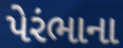
પેરંભાના